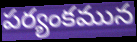
పర్యంకమున